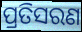
ପ୍ରତିସରଣ